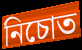
নিচোত